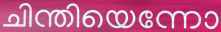
ചിന്തിയെന്നോ